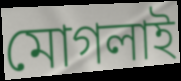
মোগলাই